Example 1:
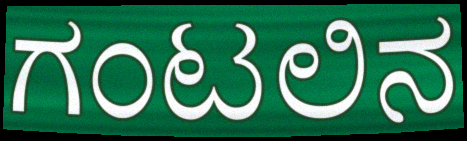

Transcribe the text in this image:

ಗಂಟಲಿನ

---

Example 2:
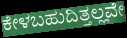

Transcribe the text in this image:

ಕೇಳಬಹುದಿತ್ತಲ್ಲವೇ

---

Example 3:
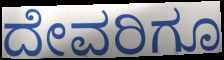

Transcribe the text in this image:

ದೇವರಿಗೂ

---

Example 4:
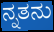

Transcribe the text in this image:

ನ್ನತನು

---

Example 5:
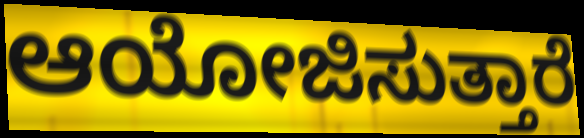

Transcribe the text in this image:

ಆಯೋಜಿಸುತ್ತಾರೆ